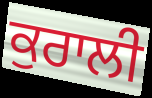
ਕੁਰਾਲੀ